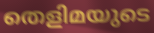
തെളിമയുടെ